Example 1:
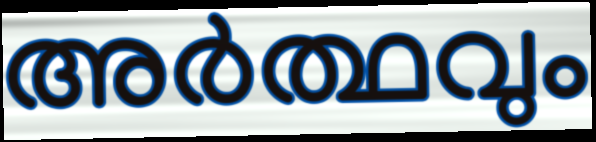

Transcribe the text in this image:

അർത്ഥവും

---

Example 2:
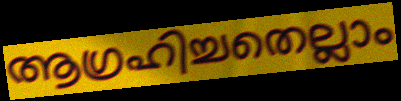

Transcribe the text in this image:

ആഗ്രഹിച്ചതെല്ലാം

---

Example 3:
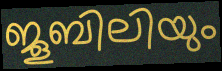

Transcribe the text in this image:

ജൂബിലിയും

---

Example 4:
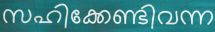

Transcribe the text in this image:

സഹിക്കേണ്ടിവന്ന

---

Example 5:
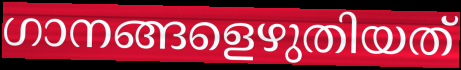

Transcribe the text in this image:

ഗാനങ്ങളെഴുതിയത്